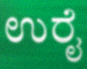
ಉರೈ